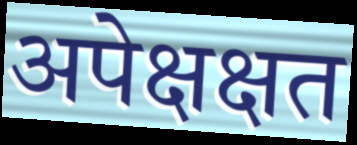
अपेक्षक्षत